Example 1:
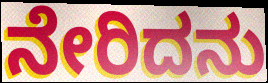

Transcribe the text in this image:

ನೇರಿದನು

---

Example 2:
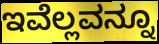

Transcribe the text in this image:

ಇವೆಲ್ಲವನ್ನೂ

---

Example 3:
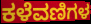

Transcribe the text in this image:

ಕಳೆವಣಿಗಳ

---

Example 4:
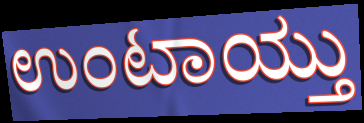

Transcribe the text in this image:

ಉಂಟಾಯ್ತು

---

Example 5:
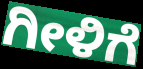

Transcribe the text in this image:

ಗೀಳಿಗೆ